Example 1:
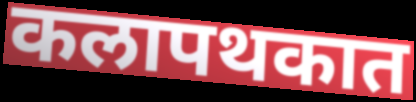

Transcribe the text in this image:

कलापथकात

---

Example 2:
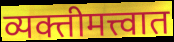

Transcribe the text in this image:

व्यक्तीमत्त्वात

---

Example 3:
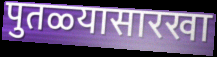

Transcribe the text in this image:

पुतळ्यासारखा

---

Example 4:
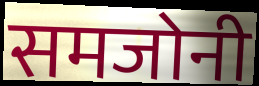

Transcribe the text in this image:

समजोनी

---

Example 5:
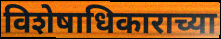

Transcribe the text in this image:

विशेषाधिकाराच्या